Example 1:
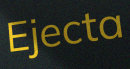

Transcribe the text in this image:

Ejecta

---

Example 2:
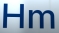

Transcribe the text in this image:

Hm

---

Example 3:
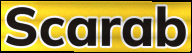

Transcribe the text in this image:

Scarab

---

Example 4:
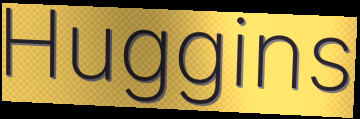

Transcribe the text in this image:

Huggins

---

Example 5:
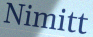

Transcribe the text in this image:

Nimitt